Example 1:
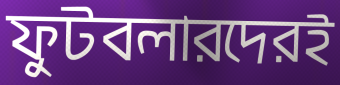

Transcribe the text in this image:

ফুটবলারদেরই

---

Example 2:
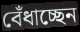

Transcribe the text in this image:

বেঁধাচ্ছেন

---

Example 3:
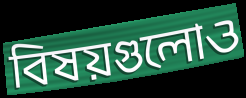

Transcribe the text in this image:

বিষয়গুলোও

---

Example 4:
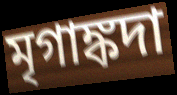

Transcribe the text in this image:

মৃগাঙ্কদা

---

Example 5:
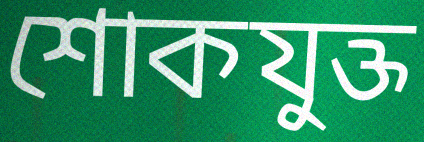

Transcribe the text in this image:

শোকযুক্ত